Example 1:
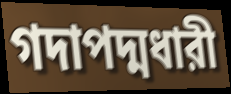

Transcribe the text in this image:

গদাপদ্মধারী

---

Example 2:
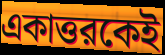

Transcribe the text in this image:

একাত্তরকেই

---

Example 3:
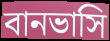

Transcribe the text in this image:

বানভাসি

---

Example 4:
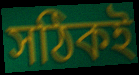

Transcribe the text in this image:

সঠিকই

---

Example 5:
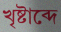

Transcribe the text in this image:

খৃষ্টাব্দে